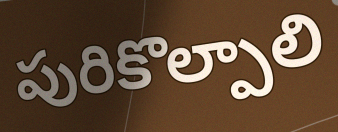
పురికొల్పాలి